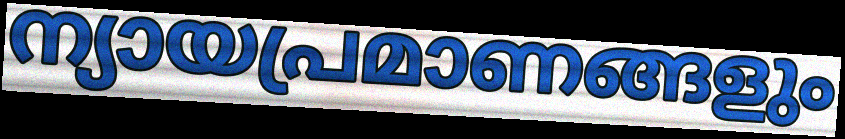
ന്യായപ്രമാണങ്ങളും